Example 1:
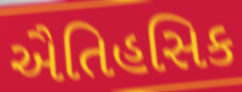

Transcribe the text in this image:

ઐતિહસિક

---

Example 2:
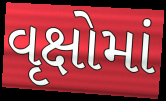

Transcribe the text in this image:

વૃક્ષોમાં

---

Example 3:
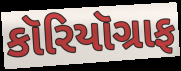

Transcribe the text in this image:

કૉરિયૉગ્રાફ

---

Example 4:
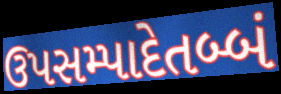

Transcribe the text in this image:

ઉપસમ્પાદેતબ્બં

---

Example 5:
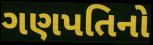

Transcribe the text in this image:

ગણપતિનો